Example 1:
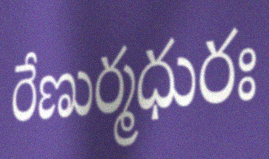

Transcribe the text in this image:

రేణుర్మధురః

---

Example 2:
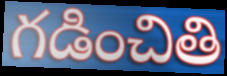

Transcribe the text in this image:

గడించితి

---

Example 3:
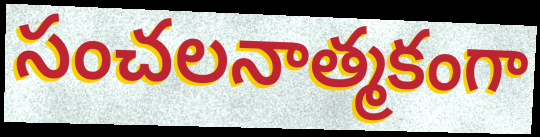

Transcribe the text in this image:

సంచలనాత్మకంగా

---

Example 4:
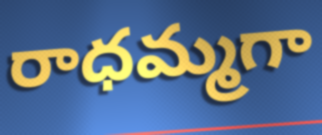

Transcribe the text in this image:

రాధమ్మగా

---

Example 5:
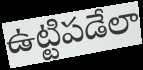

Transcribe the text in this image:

ఉట్టిపడేలా